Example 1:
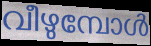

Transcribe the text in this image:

വീഴുമ്പോൾ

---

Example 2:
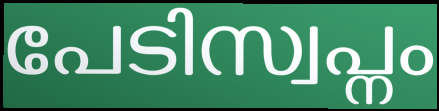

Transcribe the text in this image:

പേടിസ്വപ്നം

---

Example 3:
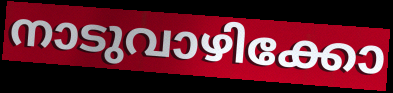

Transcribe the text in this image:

നാടുവാഴിക്കോ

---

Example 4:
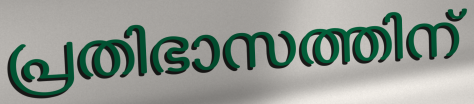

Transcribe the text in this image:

പ്രതിഭാസത്തിന്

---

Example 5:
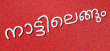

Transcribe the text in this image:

നാട്ടിലെങ്ങും